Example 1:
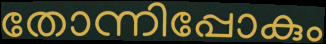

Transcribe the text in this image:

തോന്നിപ്പോകും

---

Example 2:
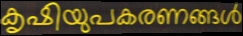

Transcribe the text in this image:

കൃഷിയുപകരണങ്ങൾ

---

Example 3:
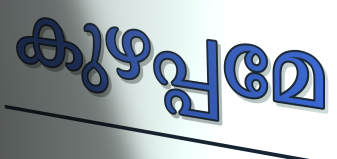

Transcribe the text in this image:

കുഴപ്പമേ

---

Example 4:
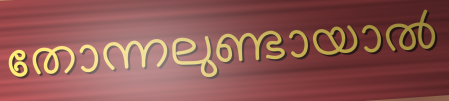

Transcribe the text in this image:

തോന്നലുണ്ടായാൽ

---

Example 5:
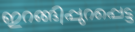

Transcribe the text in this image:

ഇറങ്ങിപ്പുറപ്പെട്ട